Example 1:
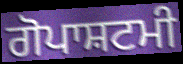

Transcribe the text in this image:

ਗੋਪਾਸ਼ਟਮੀ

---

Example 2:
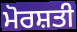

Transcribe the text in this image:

ਮੋਰਸ਼ਤੀ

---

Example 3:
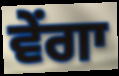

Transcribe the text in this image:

ਵੇਂਗਾ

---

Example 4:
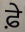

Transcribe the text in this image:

ਫ਼ੇ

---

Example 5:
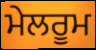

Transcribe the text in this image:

ਮੇਲਰੂਮ